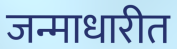
जन्माधारीत